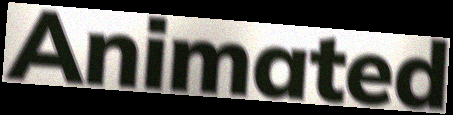
Animated